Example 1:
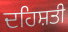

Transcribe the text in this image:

ਦਹਿਸ਼ਤੀ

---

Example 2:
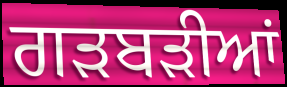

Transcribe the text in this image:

ਗੜਬੜੀਆਂ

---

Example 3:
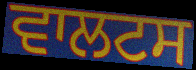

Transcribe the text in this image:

ਵਾਲਟਸ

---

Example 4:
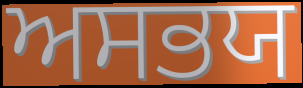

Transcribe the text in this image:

ਅਸਭਯ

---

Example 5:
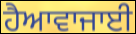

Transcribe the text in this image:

ਹੈਆਵਾਜਾਈ